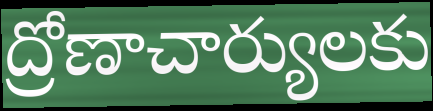
ద్రోణాచార్యులకు